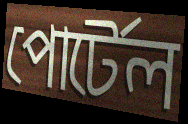
পোর্টেল